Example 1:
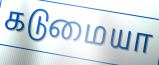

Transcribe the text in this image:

கடுமையா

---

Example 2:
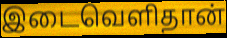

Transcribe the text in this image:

இடைவெளிதான்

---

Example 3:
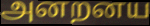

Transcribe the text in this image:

அனறனய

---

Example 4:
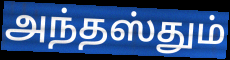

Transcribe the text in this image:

அந்தஸ்தும்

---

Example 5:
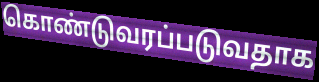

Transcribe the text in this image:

கொண்டுவரப்படுவதாக